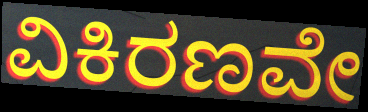
ವಿಕಿರಣವೇ